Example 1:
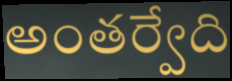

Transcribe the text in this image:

అంతర్వేది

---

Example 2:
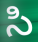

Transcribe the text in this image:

సి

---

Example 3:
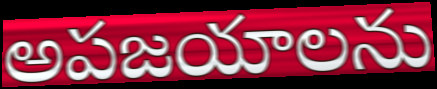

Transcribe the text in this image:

అపజయాలను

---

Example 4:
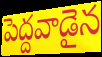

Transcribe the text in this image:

పెద్దవాడైన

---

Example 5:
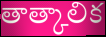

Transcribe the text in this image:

తాత్కాలిక